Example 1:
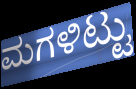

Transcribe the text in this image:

ಮಗಳಿಟ್ಟು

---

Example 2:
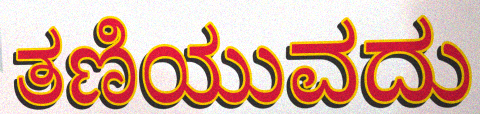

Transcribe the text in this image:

ತಣಿಯುವದು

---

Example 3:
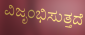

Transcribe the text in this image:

ವಿಜೃಂಭಿಸುತ್ತದೆ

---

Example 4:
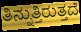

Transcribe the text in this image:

ತಿನ್ನುತ್ತಿರುತ್ತದೆ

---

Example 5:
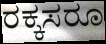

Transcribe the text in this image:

ರಕ್ಕಸರೂ